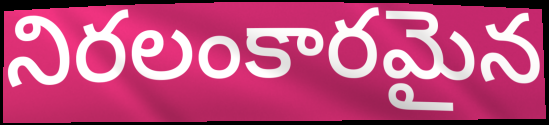
నిరలంకారమైన